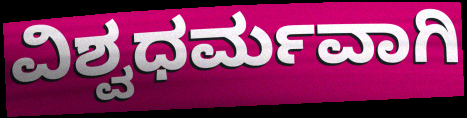
ವಿಶ್ವಧರ್ಮವಾಗಿ